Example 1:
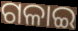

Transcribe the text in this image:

ଗଳାଇ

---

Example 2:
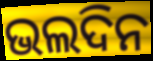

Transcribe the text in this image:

ଭଲଦିନ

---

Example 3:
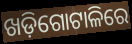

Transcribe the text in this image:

ଖଡ଼ିଗୋଟାଳିରେ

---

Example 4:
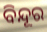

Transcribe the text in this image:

ବିନ୍ଦୂର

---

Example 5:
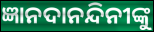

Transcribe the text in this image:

ଜ୍ଞାନଦାନନ୍ଦିନୀଙ୍କୁ